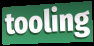
tooling